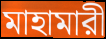
মাহামারী